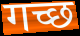
गच्छ